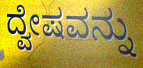
ದ್ವೇಷವನ್ನು